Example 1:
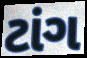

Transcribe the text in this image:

ટાંગ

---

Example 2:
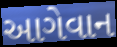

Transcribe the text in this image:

આગેવાન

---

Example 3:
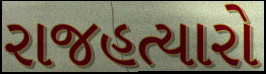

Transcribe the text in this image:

રાજહત્યારો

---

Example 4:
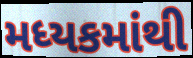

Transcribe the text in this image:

મધ્યકમાંથી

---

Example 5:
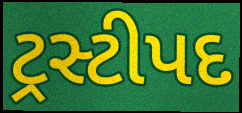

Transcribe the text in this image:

ટ્રસ્ટીપદ